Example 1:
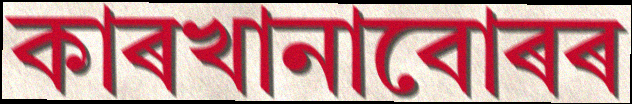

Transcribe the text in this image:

কাৰখানাবোৰৰ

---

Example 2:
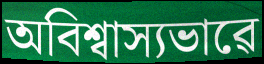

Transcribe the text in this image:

অবিশ্বাস্যভাৱে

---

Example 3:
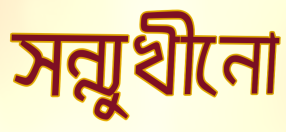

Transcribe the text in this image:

সন্মুখীনো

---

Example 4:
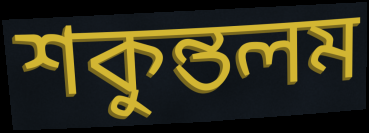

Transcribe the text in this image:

শকুন্তলম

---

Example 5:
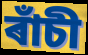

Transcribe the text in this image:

ৰাঁচী